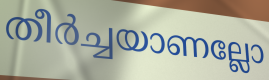
തീർച്ചയാണല്ലോ